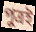
পুত্ৰই